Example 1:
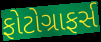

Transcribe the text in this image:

ફોટોગ્રાફર્સ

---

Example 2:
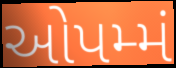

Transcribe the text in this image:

ઓપમ્મં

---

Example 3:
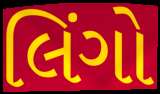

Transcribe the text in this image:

લિંગો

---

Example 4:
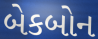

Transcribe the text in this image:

બેકબોન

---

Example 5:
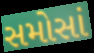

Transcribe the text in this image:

સમોસાં